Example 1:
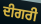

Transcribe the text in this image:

ਦੀਗਰੀ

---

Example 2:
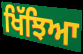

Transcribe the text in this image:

ਖਿੱਝਿਆ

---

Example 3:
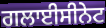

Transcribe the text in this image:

ਗਲਾਈਸੀਨੇਟ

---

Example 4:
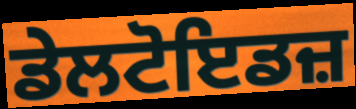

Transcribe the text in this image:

ਡੇਲਟੋਇਡਜ਼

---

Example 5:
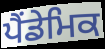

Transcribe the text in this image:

ਪੈਂਡੇਮਿਕ